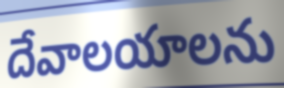
దేవాలయాలను